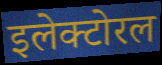
इलेक्टोरल